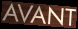
AVANT